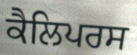
ਕੈਲਿਪਰਸ